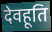
देवहूति